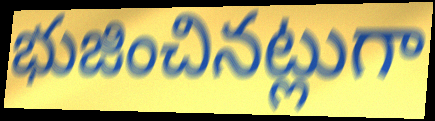
భుజించినట్లుగా